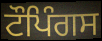
ਟੌਪਿੰਗਸ